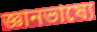
জ্ঞানভাষ্যে